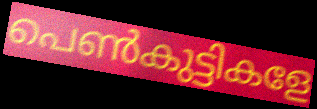
പെൺകുട്ടികളേ